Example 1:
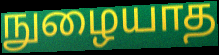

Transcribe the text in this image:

நுழையாத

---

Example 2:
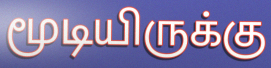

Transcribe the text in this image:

மூடியிருக்கு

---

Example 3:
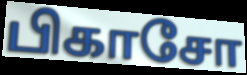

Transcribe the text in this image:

பிகாசோ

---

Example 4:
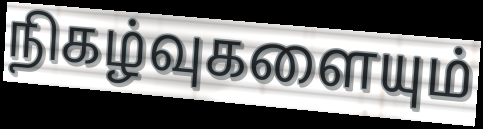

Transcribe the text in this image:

நிகழ்வுகளையும்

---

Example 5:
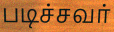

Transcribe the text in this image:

படிச்சவர்